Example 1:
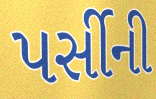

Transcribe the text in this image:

પર્સીની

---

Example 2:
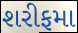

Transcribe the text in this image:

શરીફમા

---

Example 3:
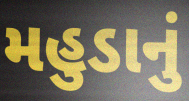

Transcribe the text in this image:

મહુડાનું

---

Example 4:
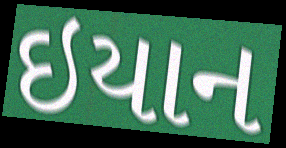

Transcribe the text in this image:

ઇયાન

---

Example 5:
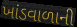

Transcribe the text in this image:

ખાંડવાળાની